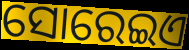
ସୋରେଇଏ